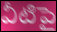
వీటిపై